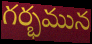
గర్భమున